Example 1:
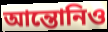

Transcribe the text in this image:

আন্তোনিও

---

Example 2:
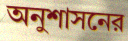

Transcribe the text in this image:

অনুশাসনের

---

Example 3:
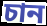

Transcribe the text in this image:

চান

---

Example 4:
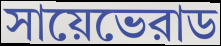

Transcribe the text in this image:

সায়েভেরাড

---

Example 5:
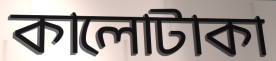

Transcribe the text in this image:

কালোটাকা